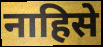
नाहिसे